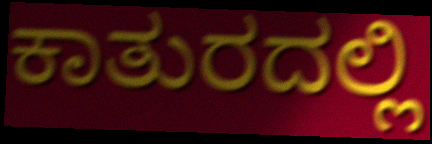
ಕಾತುರದಲ್ಲಿ